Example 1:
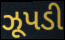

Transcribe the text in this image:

ઝૂપડી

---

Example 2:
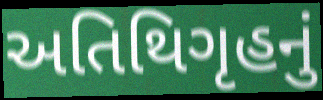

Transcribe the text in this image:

અતિથિગૃહનું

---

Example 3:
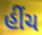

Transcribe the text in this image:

હીંચ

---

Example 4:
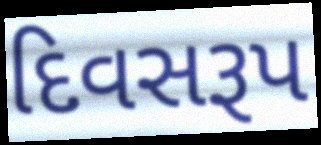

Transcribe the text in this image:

દિવસરૂપ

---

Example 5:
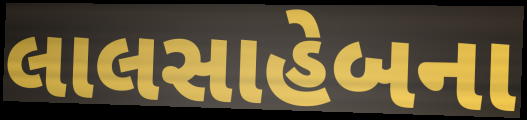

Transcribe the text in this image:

લાલસાહેબના